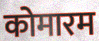
कोमारम